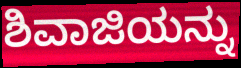
ಶಿವಾಜಿಯನ್ನು